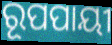
ରୂପପାୟୀ